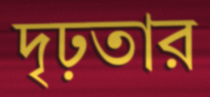
দৃঢ়তার